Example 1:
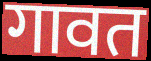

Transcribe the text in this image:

गावत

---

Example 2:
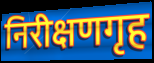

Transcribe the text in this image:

निरीक्षणगृह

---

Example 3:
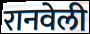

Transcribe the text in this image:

रानवेली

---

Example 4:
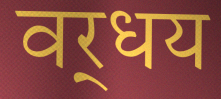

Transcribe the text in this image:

वर्धय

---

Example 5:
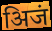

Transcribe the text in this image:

अिजं